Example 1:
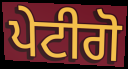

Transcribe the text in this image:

ਪੇਟੀਗੋ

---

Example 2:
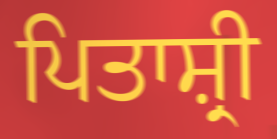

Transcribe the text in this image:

ਪਿਤਾਸ਼੍ਰੀ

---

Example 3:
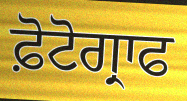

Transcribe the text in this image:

ਫ਼ੋਟੋਗ੍ਰਾਫ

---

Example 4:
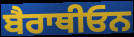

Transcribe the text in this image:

ਬੈਰਾਥੀਓਨ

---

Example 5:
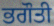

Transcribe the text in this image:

ਭਗੌਤੀ